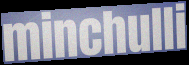
minchulli